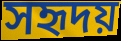
সহৃদয়